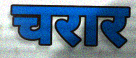
चरार